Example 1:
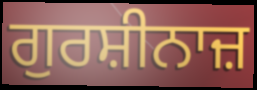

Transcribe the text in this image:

ਗੁਰਸ਼ੀਨਾਜ਼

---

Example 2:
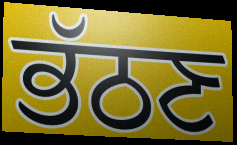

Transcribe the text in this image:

ਭੱਠਣ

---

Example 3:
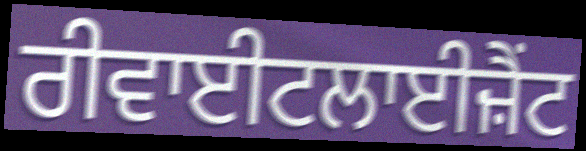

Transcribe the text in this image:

ਰੀਵਾਈਟਲਾਈਜ਼ੈਂਟ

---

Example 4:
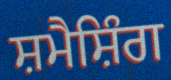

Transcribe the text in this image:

ਸ਼ਮੈਸ਼ਿੰਗ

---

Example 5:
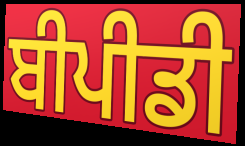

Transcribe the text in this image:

ਬੀਪੀਡੀ